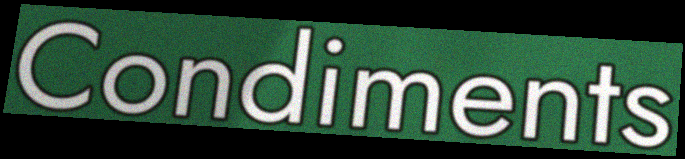
Condiments